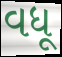
વધૂ